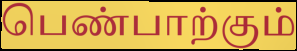
பெண்பாற்கும்